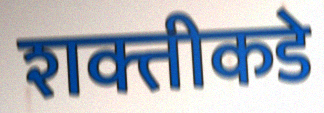
शक्तीकडे